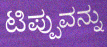
ಟಿಪ್ಪುವನ್ನು